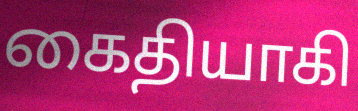
கைதியாகி